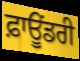
ਫ਼ਾਊਂਡਰੀ